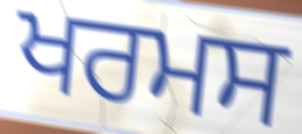
ਖਰਮਸ